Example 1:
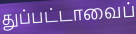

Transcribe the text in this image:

துப்பட்டாவைப்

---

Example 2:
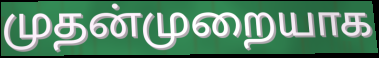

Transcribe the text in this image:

முதன்முறையாக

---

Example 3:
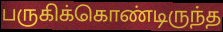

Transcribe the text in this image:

பருகிக்கொண்டிருந்த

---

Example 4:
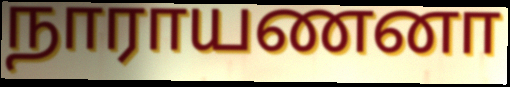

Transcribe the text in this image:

நாராயணனா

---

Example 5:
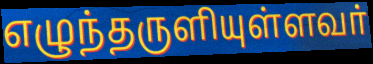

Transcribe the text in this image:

எழுந்தருளியுள்ளவர்